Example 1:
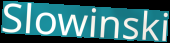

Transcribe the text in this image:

Slowinski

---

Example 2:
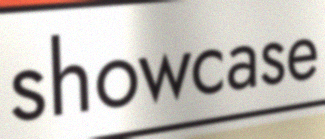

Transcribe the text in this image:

showcase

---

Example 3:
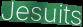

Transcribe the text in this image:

Jesuits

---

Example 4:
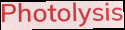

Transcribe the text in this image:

Photolysis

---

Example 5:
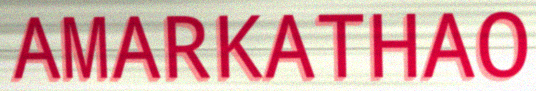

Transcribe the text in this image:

AMARKATHAO